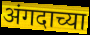
अंगदाच्या